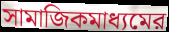
সামাজিকমাধ্যমের